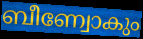
ബീണ്വോകും